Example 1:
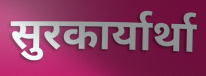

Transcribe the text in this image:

सुरकार्यार्था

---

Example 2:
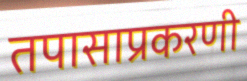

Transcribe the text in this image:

तपासाप्रकरणी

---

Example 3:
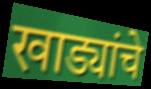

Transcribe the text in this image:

खाड्यांचे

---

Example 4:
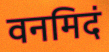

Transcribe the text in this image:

वनमिदं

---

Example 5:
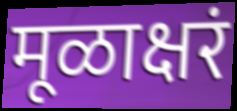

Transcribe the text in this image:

मूळाक्षरं